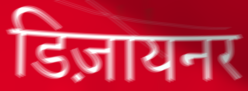
डिज़ायनर